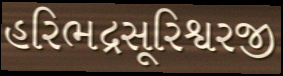
હરિભદ્રસૂરિશ્વરજી